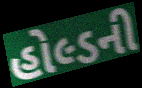
હોલ્ડની